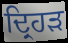
ਦ੍ਰਿਹੜ